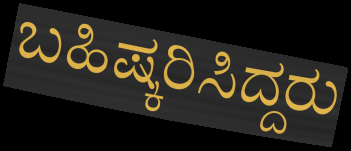
ಬಹಿಷ್ಕರಿಸಿದ್ದರು